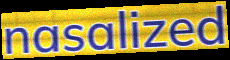
nasalized